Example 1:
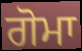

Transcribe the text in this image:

ਗੋਮਾ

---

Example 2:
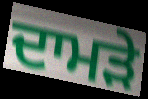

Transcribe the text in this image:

ਦਾਮੜੇ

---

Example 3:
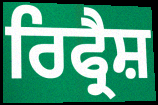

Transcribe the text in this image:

ਰਿਫ੍ਰੈਸ਼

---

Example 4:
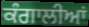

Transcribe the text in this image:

ਕੰਗਾਲੀਆਂ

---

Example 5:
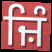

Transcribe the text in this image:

ਜ਼ਿੰ